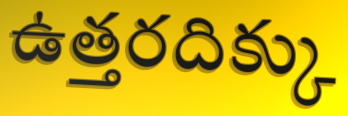
ఉత్తరదిక్కు